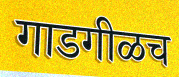
गाडगीळच